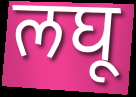
लघू